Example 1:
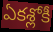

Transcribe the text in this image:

ఏకశ్లోకీ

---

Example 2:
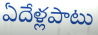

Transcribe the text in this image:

ఏదేళ్లపాటు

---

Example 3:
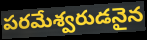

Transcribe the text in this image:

పరమేశ్వరుడనైన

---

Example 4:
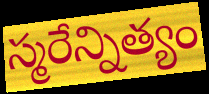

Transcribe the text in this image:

స్మరేన్నిత్యం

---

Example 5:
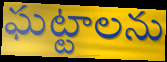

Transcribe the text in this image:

ఘట్టాలను